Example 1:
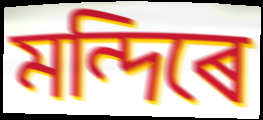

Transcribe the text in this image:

মন্দিৰে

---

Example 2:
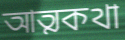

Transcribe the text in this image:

আত্মকথা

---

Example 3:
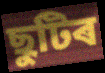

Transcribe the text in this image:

ছুটিৰ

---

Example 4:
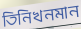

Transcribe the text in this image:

তিনিখনমান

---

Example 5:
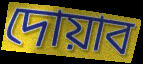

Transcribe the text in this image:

দোয়াব